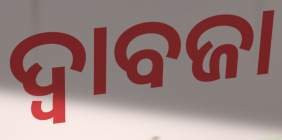
ଦ୍ୱାବଜା